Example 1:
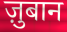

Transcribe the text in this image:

ज़ुबान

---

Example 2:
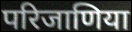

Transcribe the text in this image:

परिजाणिया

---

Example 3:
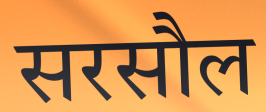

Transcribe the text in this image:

सरसौल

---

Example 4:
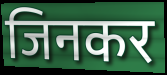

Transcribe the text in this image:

जिनकर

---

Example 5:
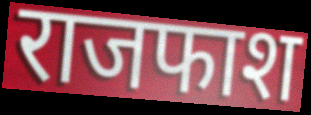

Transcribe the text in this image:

राजफाश